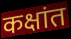
कक्षांत